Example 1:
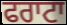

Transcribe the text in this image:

ਫਰਾਟਾ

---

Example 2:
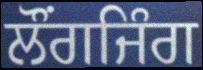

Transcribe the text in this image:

ਲੌਂਗਜਿੰਗ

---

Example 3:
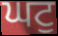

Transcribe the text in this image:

ਘਟੁ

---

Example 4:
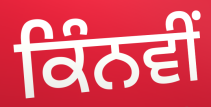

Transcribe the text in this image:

ਕਿੰਨਵੀਂ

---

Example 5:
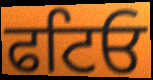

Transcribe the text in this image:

ਫਟਿਓ